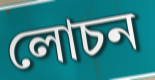
লোচন